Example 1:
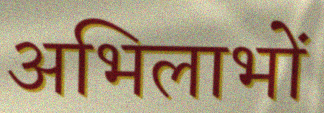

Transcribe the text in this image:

अभिलाभों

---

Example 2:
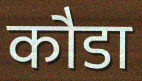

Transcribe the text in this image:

कौडा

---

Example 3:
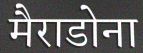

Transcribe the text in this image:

मैराडोना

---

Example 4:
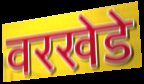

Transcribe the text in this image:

वरखेडे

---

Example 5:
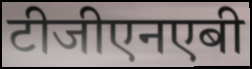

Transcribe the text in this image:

टीजीएनएबी